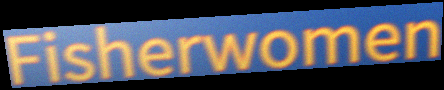
Fisherwomen